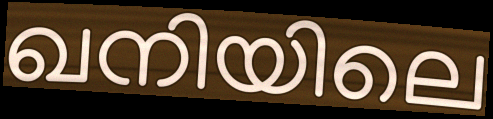
ഖനിയിലെ